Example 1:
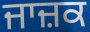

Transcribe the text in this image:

ਜਾਜ਼ਕ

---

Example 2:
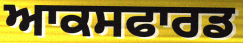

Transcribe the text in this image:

ਆਕਸਫਾਰਡ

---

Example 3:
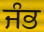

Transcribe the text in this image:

ਜੰਭ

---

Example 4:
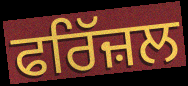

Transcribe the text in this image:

ਫਰਿੱਜ਼ਲ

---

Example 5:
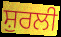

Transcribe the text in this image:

ਸ਼ੁਰਲੀ